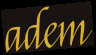
adem